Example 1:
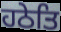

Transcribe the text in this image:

ਹਠੇਤਿ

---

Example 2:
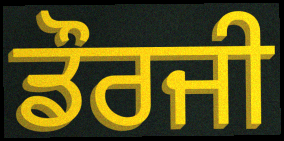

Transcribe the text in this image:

ਡੌਰਜੀ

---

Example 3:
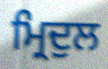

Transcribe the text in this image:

ਮ੍ਰਿਦੁਲ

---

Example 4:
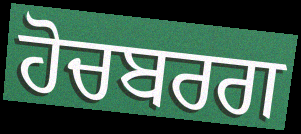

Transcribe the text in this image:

ਹੋਚਬਰਗ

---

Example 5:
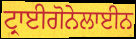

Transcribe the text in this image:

ਟ੍ਰਾਈਗੋਨੇਲਾਈਨ